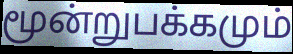
மூன்றுபக்கமும்